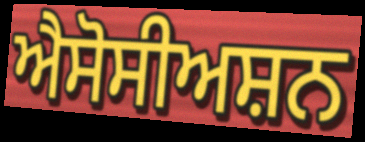
ਐਸੋਸੀਅਸ਼ਨ